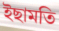
ইছামতি